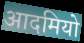
आदमियो